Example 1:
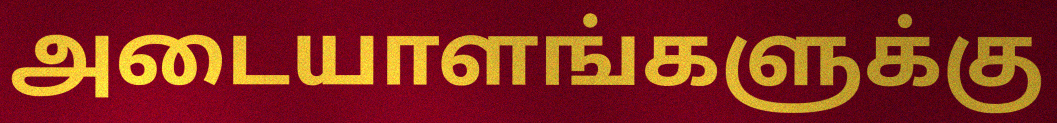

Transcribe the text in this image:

அடையாளங்களுக்கு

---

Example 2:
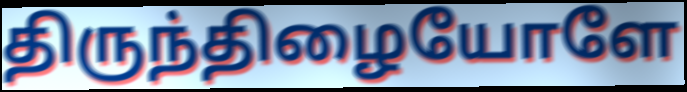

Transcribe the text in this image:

திருந்திழையோளே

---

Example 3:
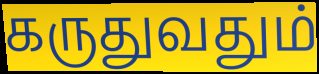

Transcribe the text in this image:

கருதுவதும்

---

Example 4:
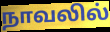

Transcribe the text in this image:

நாவலில்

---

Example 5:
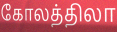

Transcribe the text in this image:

கோலத்திலா